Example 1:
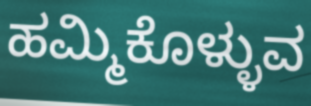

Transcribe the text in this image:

ಹಮ್ಮಿಕೊಳ್ಳುವ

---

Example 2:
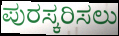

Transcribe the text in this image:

ಪುರಸ್ಕರಿಸಲು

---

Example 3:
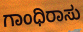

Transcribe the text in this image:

ಗಾಂಧಿರಾಸು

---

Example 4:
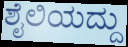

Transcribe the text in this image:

ಶೈಲಿಯದ್ದು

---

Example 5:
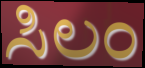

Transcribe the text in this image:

ಸಿಲಂ